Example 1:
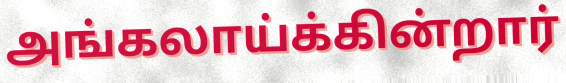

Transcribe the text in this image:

அங்கலாய்க்கின்றார்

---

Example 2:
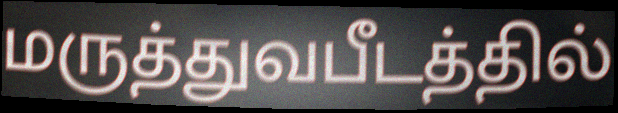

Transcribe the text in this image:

மருத்துவபீடத்தில்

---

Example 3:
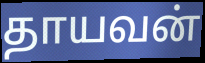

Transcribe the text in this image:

தாயவன்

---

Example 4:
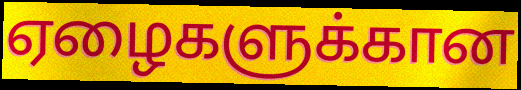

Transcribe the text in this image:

ஏழைகளுக்கான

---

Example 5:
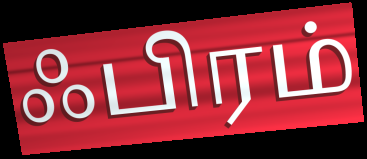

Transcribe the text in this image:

ஃபிரம்